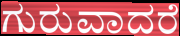
ಗುರುವಾದರೆ